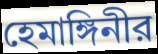
হেমাঙ্গিনীর